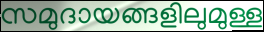
സമുദായങ്ങളിലുമുള്ള